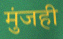
मुंजही